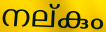
നല്‌കും